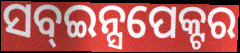
ସବ୍ଇନ୍ସପେକ୍ଟର